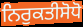
ਨਿਰੁਕਤੀਸੋਧੋ